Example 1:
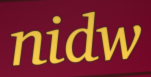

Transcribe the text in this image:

nidw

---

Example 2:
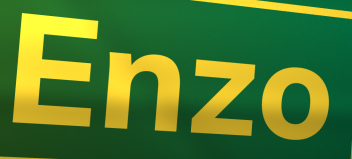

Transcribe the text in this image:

Enzo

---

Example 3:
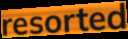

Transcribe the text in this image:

resorted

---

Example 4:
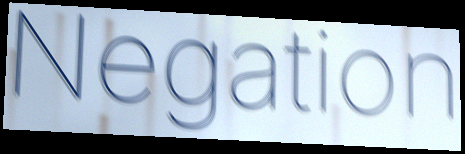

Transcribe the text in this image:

Negation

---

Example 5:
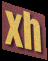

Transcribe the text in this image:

xh